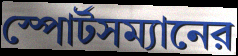
স্পোর্টসম্যানের